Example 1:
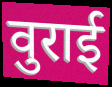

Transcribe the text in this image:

वुराई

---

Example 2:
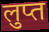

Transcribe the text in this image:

लुप्‍त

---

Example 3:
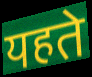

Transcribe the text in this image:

यहते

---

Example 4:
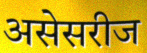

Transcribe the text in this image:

असेसरीज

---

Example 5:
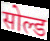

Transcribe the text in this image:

सोल्ड